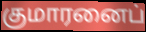
குமாரனைப்